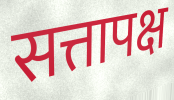
सत्तापक्ष